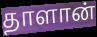
தாளான்